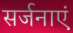
सर्जनाएं